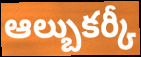
ఆల్బుకర్కీ